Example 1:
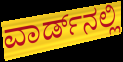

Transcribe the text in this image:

ವಾರ್ಡ್‌ನಲ್ಲಿ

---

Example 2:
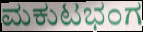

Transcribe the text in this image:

ಮಕುಟಭಂಗ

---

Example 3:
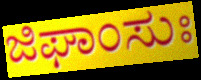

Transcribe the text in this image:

ಜಿಘಾಂಸುಃ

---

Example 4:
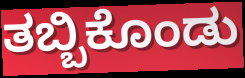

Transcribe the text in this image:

ತಬ್ಬಿಕೊಂಡು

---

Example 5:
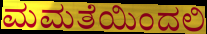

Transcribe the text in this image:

ಮಮತೆಯಿಂದಲಿ